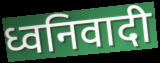
ध्वनिवादी